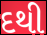
દથી